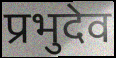
प्रभुदेव